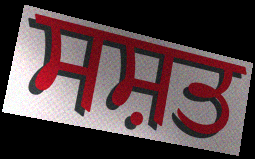
ਸਸ਼ਤ